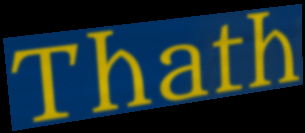
Thath